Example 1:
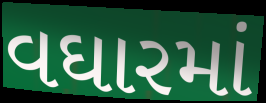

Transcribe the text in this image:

વઘારમાં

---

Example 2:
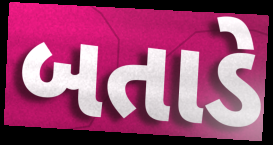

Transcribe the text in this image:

બતાડે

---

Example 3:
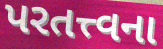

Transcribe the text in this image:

પરતત્ત્વના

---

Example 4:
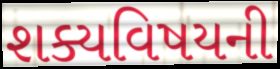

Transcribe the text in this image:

શક્યવિષયની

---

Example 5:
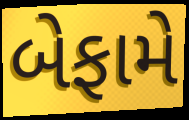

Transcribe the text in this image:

બેફામે